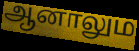
ஆனாலும